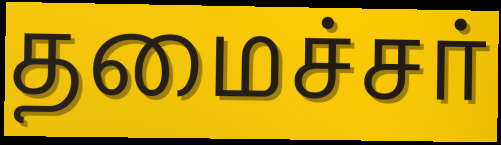
தமைச்சர்